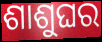
ଶାଶୁଘର